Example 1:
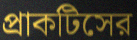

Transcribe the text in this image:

প্রাকটিসের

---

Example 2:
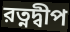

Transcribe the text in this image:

রত্নদ্বীপ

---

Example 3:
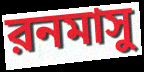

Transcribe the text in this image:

রনমাসু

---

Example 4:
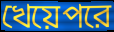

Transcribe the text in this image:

খেয়েপরে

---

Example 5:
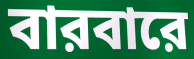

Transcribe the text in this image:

বারবারে